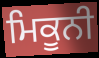
ਮਿਕੂਨੀ